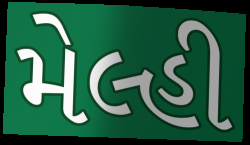
મેલ્હી